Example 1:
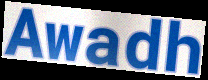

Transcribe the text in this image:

Awadh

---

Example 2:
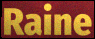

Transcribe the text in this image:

Raine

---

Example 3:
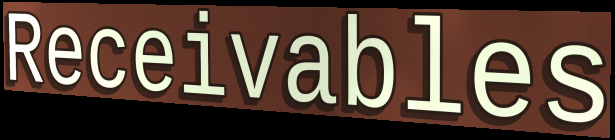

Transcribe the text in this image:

Receivables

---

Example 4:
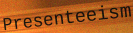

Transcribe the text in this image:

Presenteeism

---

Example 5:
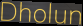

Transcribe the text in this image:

Dholun